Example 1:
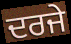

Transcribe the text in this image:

ਦਰਜੇ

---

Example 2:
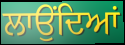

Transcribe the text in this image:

ਲਾਉਂਦਿਆਂ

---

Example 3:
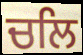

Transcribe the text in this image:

ਚਲਿ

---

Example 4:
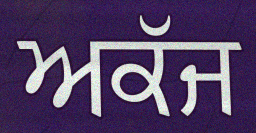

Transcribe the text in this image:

ਅਕੱਜ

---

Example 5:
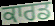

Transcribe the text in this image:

ਕਾਰਡ